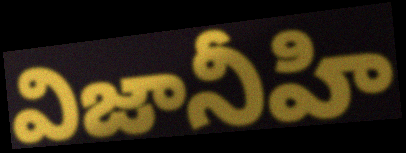
విజానీహి